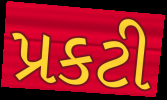
પ્રકટી